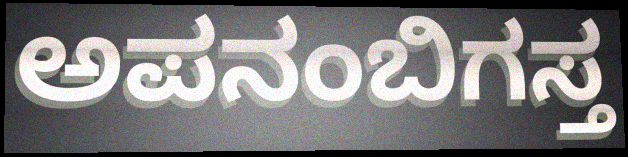
ಅಪನಂಬಿಗಸ್ತ